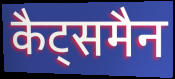
कैट्समैन